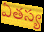
ఏతస్య